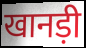
खानड़ी